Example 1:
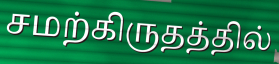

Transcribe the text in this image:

சமற்கிருதத்தில்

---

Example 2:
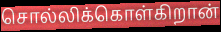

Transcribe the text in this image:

சொல்லிக்கொள்கிறான்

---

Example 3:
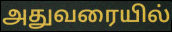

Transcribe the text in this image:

அதுவரையில்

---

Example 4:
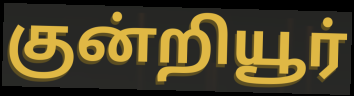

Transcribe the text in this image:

குன்றியூர்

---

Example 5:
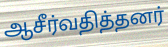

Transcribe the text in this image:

ஆசீர்வதித்தனர்